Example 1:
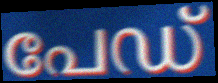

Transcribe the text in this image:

പേഡ്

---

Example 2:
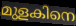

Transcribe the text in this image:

മുളകിനെ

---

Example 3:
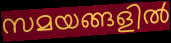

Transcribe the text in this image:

സമയങ്ങളിൽ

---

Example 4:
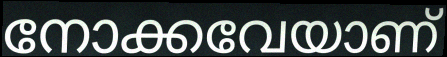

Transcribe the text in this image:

നോക്കവേയാണ്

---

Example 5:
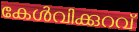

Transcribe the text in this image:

കേൾവിക്കുറവ്